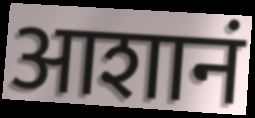
आशानं